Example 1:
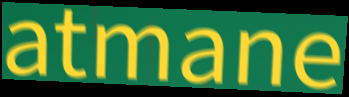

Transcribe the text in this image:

atmane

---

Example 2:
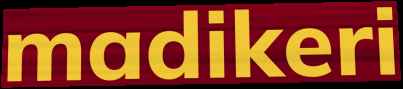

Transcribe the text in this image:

madikeri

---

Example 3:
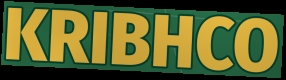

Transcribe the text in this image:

KRIBHCO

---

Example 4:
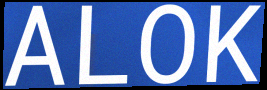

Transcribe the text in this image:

ALOK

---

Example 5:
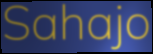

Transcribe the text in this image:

Sahajo